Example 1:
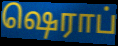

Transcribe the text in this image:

ஷெராப்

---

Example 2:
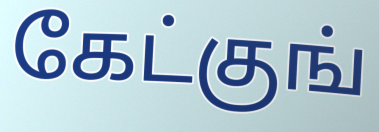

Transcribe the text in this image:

கேட்குங்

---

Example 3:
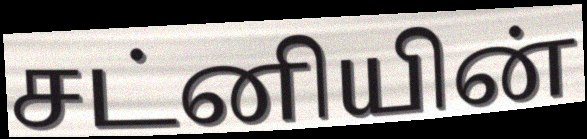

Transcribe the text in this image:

சட்னியின்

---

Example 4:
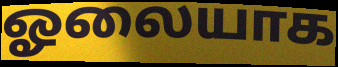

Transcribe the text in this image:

ஓலையாக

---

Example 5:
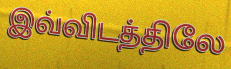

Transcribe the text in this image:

இவ்விடத்திலே